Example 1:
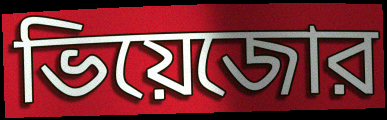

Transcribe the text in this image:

ভিয়েজোর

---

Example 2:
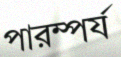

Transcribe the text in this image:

পারম্পর্য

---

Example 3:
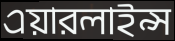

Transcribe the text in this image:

এয়ারলাইন্স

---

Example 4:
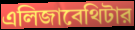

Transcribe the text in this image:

এলিজাবেথিটার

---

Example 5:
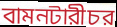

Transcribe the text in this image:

বামনটারীচর